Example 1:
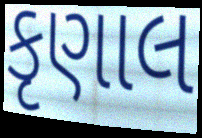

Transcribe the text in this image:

કૃણાલ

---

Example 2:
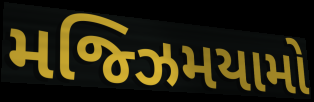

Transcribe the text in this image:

મજ્ઝિમયામો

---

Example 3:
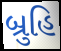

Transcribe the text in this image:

બ્રુહિ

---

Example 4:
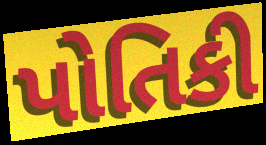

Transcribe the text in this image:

પોતિકી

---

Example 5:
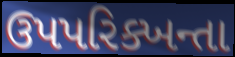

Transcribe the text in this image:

ઉપપરિક્ખન્તા